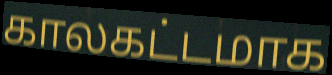
காலகட்டமாக